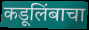
कडूलिंबाचा